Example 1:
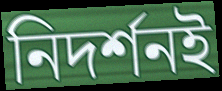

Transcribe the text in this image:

নিদর্শনই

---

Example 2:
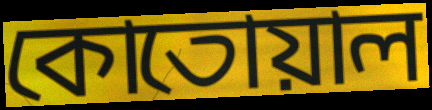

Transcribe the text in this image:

কোতোয়াল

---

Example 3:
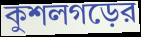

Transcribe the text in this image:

কুশলগড়ের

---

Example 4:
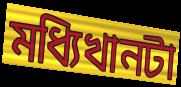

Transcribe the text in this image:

মধ্যিখানটা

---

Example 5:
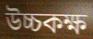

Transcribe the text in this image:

উচ্চকক্ষ